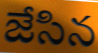
జేసిన